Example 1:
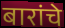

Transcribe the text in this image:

बारांचे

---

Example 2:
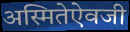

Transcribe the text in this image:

अस्मितेऐवजी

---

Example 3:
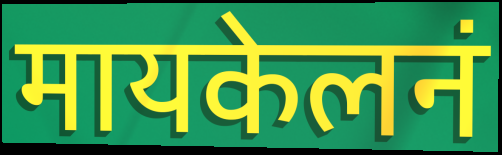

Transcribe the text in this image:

मायकेलनं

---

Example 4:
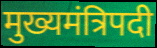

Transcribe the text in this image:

मुख्यमंत्रिपदी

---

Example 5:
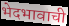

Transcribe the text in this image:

भेदभावाची